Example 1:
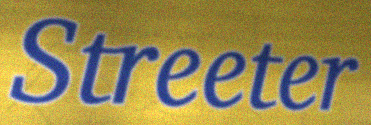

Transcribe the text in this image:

Streeter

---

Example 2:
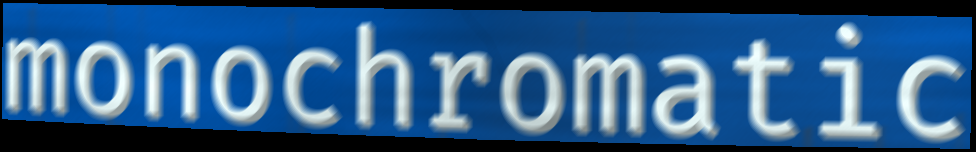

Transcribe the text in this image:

monochromatic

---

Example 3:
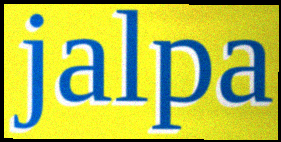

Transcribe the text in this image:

jalpa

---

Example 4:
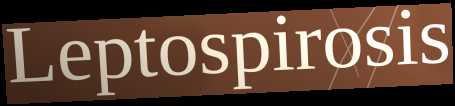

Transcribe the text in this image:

Leptospirosis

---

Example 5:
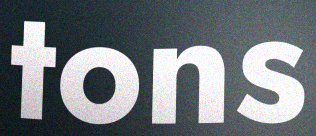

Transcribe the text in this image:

tons